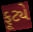
ફૂટ્યે